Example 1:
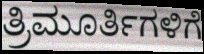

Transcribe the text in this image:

ತ್ರಿಮೂರ್ತಿಗಳಿಗೆ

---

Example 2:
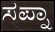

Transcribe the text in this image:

ಸಪ್ನಾ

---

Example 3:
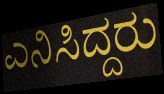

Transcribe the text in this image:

ಎನಿಸಿದ್ದರು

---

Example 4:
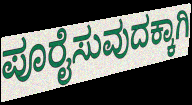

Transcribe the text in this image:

ಪೂರೈಸುವುದಕ್ಕಾಗಿ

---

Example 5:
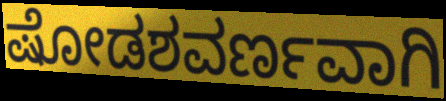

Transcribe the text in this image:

ಷೋಡಶವರ್ಣವಾಗಿ